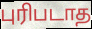
புரிபடாத